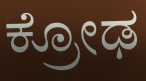
ಕ್ರೋಢ